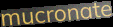
mucronate